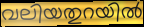
വലിയതുറയിൽ